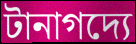
টানাগদ্যে